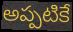
అప్పటికే